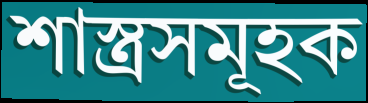
শাস্ত্ৰসমূহক